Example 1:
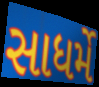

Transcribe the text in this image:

સાધર્મે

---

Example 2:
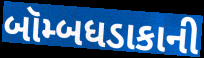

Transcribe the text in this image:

બૉમ્બધડાકાની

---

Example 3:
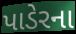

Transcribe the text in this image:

પાડેરના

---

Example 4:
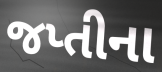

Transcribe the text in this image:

જપ્તીના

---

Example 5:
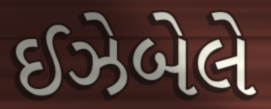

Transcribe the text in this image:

ઈઝેબેલે